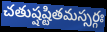
చతుష్షష్టితమస్సర్గః